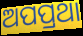
ଅପପ୍ରଥା